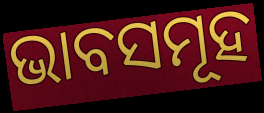
ଭାବସମୂହ